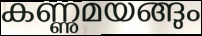
കണ്ണുമയങ്ങും